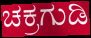
ಚಕ್ರಗುಡಿ